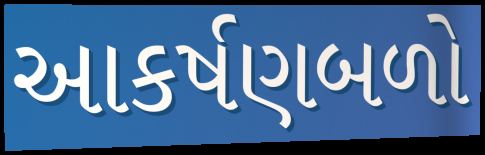
આકર્ષણબળો